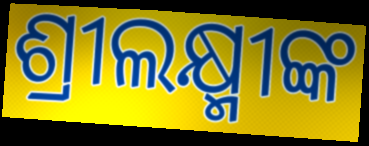
ଶ୍ରୀଲକ୍ଷ୍ମୀଙ୍କ